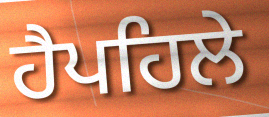
ਹੈਪਹਿਲੇ